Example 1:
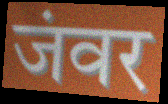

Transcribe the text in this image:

जंवर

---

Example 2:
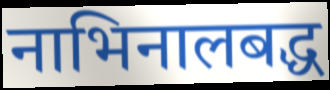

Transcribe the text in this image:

नाभिनालबद्ध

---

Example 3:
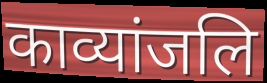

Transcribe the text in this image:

काव्यांजलि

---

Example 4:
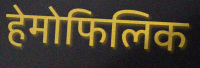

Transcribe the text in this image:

हेमोफिलिक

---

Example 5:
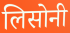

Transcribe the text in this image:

लिसोनी